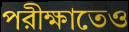
পরীক্ষাতেও